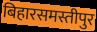
बिहारसमस्तीपुर